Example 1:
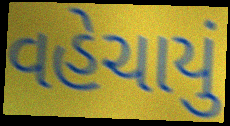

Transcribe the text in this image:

વહેચાયું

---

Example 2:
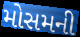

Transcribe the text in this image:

મોસમની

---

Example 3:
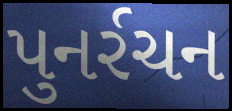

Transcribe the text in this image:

પુનર્રચન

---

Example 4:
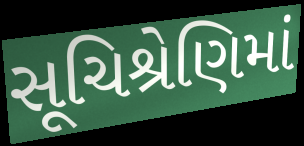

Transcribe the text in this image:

સૂચિશ્રેણિમાં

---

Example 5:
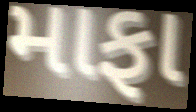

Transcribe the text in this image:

માફા